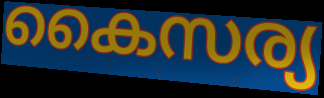
കൈസര്യ